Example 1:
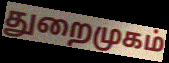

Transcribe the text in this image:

துறைமுகம்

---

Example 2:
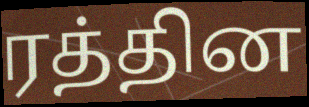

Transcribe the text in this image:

ரத்தின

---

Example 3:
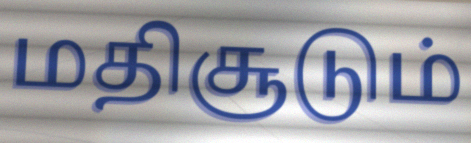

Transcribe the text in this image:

மதிசூடும்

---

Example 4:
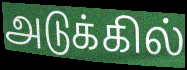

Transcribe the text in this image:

அடுக்கில்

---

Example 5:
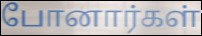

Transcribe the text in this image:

போனார்கள்